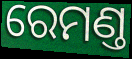
ରେମଣ୍ତ